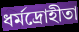
ধর্মদ্রোহীতা